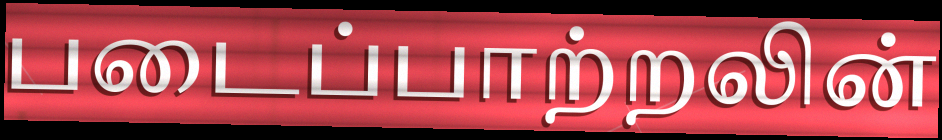
படைப்பாற்றலின்